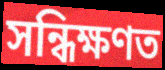
সন্ধিক্ষণত